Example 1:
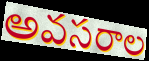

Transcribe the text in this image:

అవసరాల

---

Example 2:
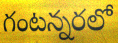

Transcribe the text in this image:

గంటన్నరలో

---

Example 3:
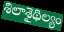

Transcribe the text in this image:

శిలాశైథిల్యం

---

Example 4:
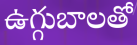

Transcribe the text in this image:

ఉగ్గుబాలతో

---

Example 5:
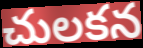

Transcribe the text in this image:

చులకన